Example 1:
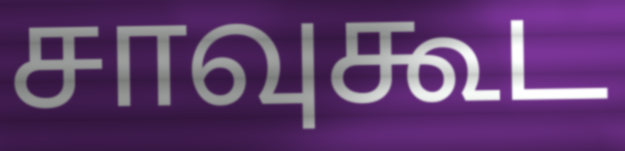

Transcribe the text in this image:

சாவுகூட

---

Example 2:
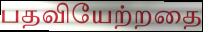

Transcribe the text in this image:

பதவியேற்றதை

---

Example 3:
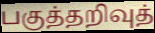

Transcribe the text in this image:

பகுத்தறிவுத்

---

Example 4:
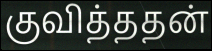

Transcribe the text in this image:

குவித்ததன்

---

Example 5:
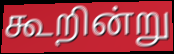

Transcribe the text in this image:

கூறின்று